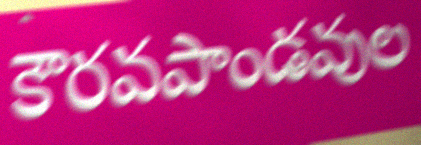
కౌరవపాండవుల